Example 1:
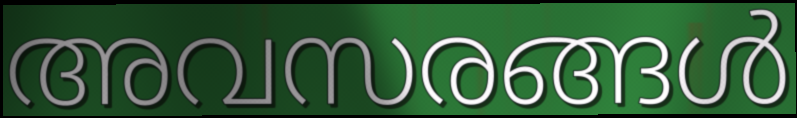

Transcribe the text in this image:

അവസരങ്ങൾ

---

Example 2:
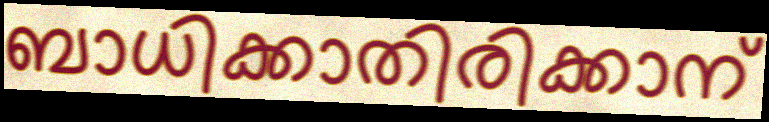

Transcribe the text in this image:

ബാധിക്കാതിരിക്കാന്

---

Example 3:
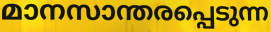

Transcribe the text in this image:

മാനസാന്തരപ്പെടുന്ന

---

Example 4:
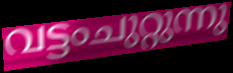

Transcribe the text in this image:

വട്ടംചുറ്റുന്നു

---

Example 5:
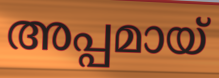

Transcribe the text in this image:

അപ്പമായ്